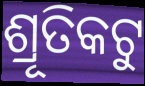
ଶ୍ରୂତିକଟୁ